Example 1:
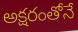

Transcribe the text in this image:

అక్షరంతోనే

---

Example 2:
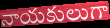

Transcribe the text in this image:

నాయకులుగా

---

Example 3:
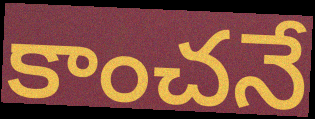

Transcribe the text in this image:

కాంచనే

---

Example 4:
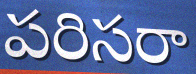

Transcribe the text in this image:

పరిసరా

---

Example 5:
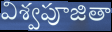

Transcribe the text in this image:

విశ్వపూజితా